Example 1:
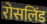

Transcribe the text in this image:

रोसलिंड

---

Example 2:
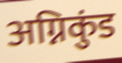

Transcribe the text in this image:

अग्निकुंड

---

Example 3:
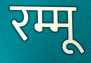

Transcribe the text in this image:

रम्मू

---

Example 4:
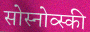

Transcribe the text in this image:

सोस्नोव्स्की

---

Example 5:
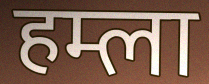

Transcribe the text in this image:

हम्ला